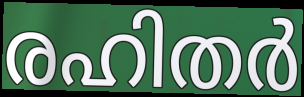
രഹിതർ